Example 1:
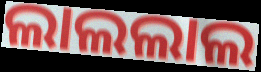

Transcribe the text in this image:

ଲାଲଲାଲ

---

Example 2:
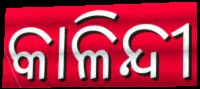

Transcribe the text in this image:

କାଳିନ୍ଦୀ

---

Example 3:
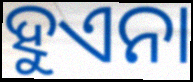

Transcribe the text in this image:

ହୁଏନା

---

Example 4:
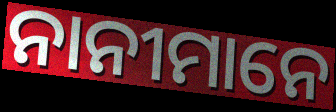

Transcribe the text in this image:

ନାନୀମାନେ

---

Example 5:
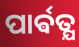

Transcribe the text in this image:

ପାର୍ଵତ୍ଯ